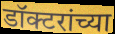
डॉक्‍टरांच्या